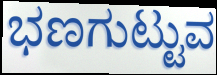
ಭಣಗುಟ್ಟುವ